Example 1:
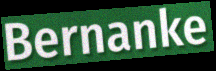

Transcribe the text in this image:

Bernanke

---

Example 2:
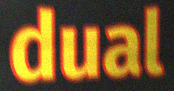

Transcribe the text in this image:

dual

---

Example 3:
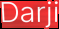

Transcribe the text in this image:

Darji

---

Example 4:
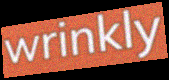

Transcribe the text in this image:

wrinkly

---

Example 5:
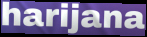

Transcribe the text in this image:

harijana